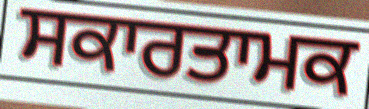
ਸਕਾਰਤਾਮਕ